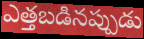
ఎత్తబడినప్పుడు